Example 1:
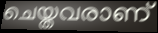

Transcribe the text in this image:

ചെയ്തവരാണ്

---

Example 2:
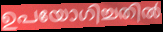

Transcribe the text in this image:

ഉപയോഗിച്ചതിൽ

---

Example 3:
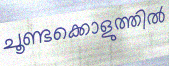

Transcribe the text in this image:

ചൂണ്ടക്കൊളുത്തിൽ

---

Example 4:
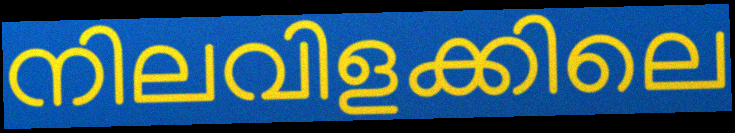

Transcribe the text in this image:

നിലവിളക്കിലെ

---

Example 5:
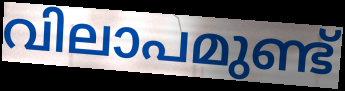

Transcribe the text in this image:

വിലാപമുണ്ട്